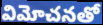
విమోచనతో